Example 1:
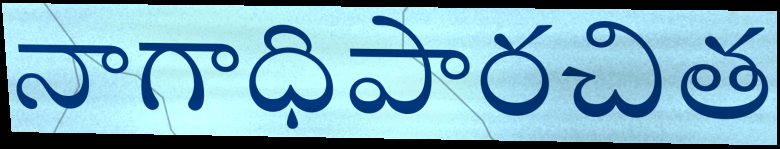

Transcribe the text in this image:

నాగాధిపారచిత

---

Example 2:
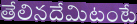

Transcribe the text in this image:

తేలినదేమిటంటే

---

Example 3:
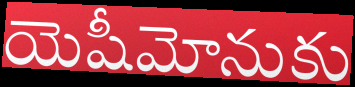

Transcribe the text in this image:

యెషీమోనుకు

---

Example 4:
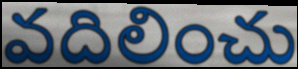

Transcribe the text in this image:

వదిలించు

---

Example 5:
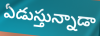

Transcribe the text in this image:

ఏడుస్తున్నాడా